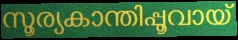
സൂര്യകാന്തിപ്പൂവായ്